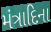
મંત્રાદિના